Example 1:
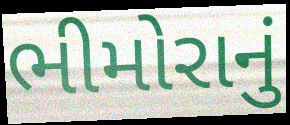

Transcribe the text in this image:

ભીમોરાનું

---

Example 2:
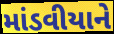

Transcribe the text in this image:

માંડવીયાને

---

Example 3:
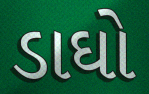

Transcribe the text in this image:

ડાઘો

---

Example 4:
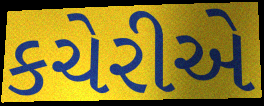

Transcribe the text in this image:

કચેરીએ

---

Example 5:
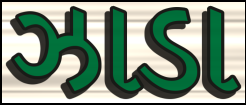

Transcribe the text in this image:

ઝાડા